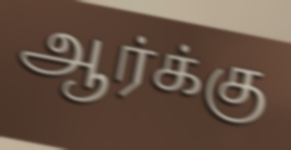
ஆர்க்கு